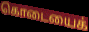
கொடையைக்